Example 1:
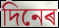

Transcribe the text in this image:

দিনেৰ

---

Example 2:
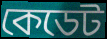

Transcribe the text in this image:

কেডেট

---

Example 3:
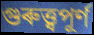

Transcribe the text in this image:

গুৰুত্ত্বপূৰ্ণ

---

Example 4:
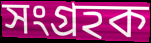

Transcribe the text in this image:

সংগ্ৰহক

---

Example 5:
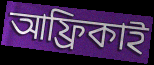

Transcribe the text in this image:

আফ্ৰিকাই